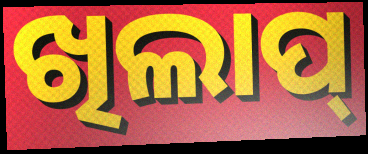
ଖିଲାପ୍